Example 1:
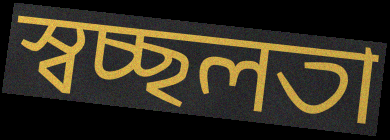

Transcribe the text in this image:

স্বচ্ছলতা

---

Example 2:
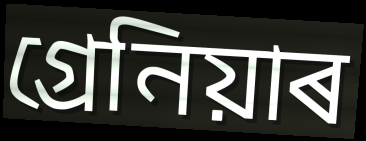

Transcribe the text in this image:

গ্ৰেনিয়াৰ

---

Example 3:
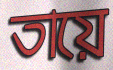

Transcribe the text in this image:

তায়ে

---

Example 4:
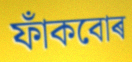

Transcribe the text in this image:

ফাঁকবোৰ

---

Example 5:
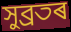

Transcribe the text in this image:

সুব্ৰতৰ